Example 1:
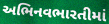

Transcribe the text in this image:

અભિનવભારતીમાં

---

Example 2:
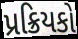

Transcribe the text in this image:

પ્રક્રિયકો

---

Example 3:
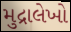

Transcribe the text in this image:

મુદ્રાલેખો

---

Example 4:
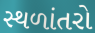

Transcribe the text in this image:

સ્થળાંતરો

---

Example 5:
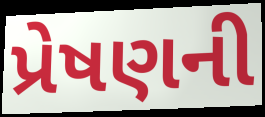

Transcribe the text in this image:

પ્રેષણની